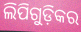
ଲିପିଗୁଡ଼ିକର